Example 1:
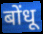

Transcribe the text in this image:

बोंधू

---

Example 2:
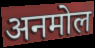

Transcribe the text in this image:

अनमोल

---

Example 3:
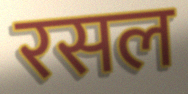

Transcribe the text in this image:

रसल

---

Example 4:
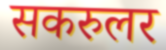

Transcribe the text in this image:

सकरुलर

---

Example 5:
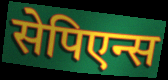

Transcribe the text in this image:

सेपिएन्स